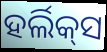
ହର୍ଲିକ୍‌ସ